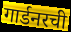
गार्डनरची